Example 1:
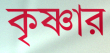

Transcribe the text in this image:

কৃষ্ণার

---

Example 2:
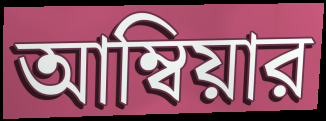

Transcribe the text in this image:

আম্বিয়ার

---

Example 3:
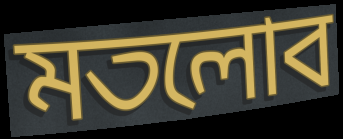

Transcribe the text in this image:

মতলোব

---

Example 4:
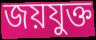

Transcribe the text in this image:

জয়যুক্ত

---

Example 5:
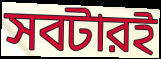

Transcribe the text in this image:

সবটারই